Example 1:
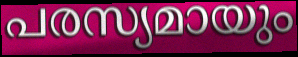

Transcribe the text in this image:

പരസ്യമായും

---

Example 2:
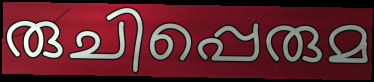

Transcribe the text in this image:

രുചിപ്പെരുമ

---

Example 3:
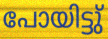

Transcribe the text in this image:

പോയിട്ടു്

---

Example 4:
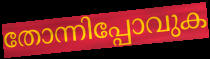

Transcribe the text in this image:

തോന്നിപ്പോവുക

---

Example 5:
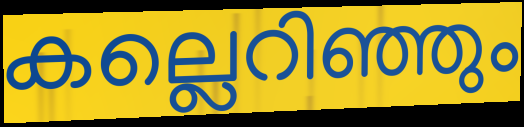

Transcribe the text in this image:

കല്ലെറിഞ്ഞും